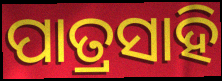
ପାତ୍ରସାହି